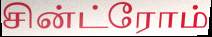
சின்ட்ரோம்